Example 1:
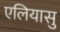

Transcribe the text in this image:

एलियासु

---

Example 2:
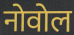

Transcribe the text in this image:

नोवोल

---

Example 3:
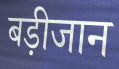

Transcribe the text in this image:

बड़ीजान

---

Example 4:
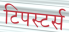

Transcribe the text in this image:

टिपस्टर्स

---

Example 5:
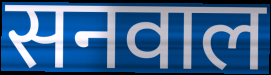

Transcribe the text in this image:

सनवाल